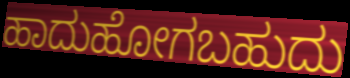
ಹಾದುಹೋಗಬಹುದು